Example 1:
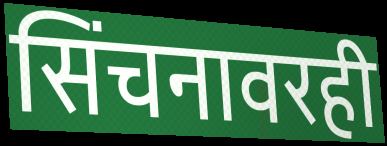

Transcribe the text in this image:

सिंचनावरही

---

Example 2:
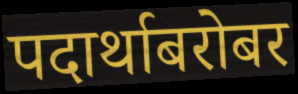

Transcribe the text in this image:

पदार्थाबरोबर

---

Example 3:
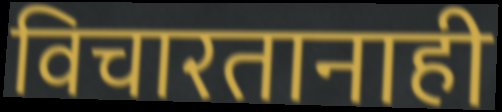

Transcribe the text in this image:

विचारतानाही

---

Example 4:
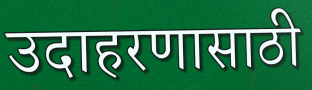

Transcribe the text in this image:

उदाहरणासाठी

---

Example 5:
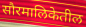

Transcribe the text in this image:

सौरमालिकेतील